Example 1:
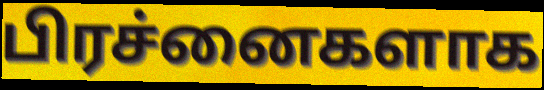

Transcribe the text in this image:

பிரச்னைகளாக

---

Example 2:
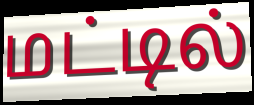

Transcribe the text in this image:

மட்டில்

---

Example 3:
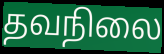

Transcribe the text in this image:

தவநிலை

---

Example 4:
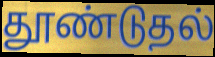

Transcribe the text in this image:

தூண்டுதல்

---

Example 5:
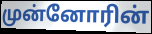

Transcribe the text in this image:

முன்னோரின்